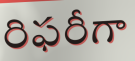
రిఫరీగా